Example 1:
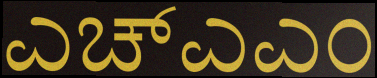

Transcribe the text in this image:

ಎಚ್ಎಎಂ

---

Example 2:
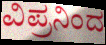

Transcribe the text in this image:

ವಿಪ್ರನಿಂದ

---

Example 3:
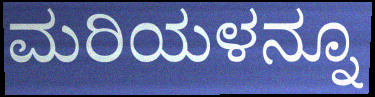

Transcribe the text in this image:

ಮರಿಯಳನ್ನೂ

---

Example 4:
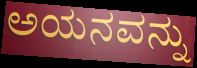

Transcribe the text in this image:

ಅಯನವನ್ನು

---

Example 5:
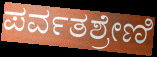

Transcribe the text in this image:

ಪರ್ವತಶ್ರೇಣಿ